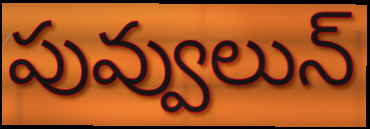
పువ్వులున్